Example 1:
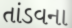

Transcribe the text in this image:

તાંડવના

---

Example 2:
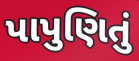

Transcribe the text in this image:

પાપુણિતું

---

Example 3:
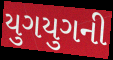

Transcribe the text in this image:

યુગયુગની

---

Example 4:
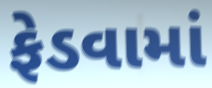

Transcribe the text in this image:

ફેડવામાં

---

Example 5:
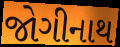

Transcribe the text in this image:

જોગીનાથ